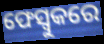
ଫେସ୍ବୁକରେ